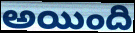
అయింది